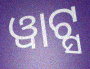
ୱାଟ୍ସ